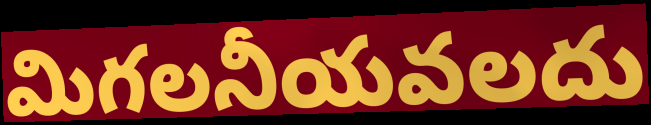
మిగలనీయవలదు